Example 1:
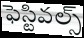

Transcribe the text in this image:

ఫెస్టివల్స్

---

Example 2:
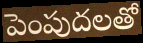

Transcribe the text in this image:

పెంపుదలతో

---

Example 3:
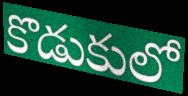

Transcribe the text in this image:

కొడుకులో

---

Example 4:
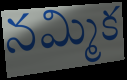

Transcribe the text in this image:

నమ్మిక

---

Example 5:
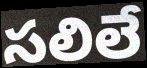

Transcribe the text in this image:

సలిలే